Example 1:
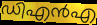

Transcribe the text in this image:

ഡിഎൻഎ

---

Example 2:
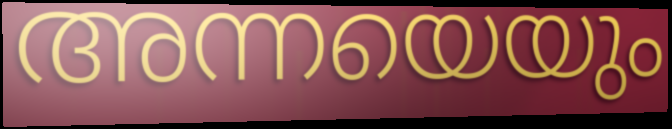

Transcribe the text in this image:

അന്നയെയും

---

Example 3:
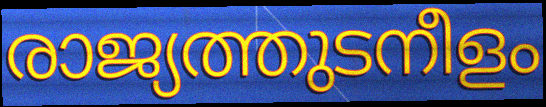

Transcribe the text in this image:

രാജ്യത്തുടനീളം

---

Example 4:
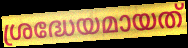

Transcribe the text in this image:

ശ്രദ്ധേയമായത്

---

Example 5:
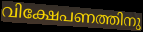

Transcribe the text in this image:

വിക്ഷേപണത്തിനു